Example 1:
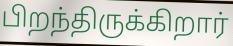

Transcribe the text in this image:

பிறந்திருக்கிறார்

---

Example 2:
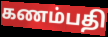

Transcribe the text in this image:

கணம்பதி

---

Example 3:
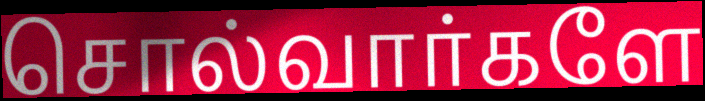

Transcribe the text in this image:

சொல்வார்களே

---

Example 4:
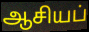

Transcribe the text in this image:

ஆசியப்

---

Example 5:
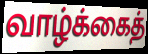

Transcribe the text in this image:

வாழ்க்கைத்